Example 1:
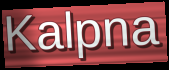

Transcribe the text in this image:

Kalpna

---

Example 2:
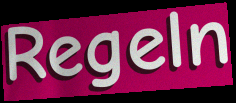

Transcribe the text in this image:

Regeln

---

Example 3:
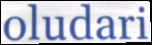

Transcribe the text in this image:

oludari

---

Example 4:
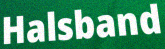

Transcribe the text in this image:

Halsband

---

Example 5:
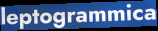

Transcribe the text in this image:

leptogrammica